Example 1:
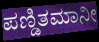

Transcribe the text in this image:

ಪಣ್ಡಿತಮಾನೀ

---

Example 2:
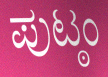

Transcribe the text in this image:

ಪುಟ್ಠಂ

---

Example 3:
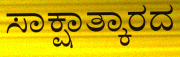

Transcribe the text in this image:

ಸಾಕ್ಷಾತ್ಕಾರದ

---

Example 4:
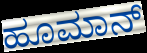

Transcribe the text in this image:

ಹೂಮಾನ್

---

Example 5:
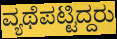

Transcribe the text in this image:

ವ್ಯಥೆಪಟ್ಟಿದ್ದರು